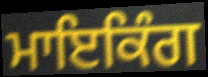
ਮਾਇਕਿੰਗ